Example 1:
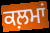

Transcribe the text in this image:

ਕਲ਼ਮਾਂ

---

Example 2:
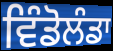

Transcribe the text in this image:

ਵਿੰਡੋਲੰਡਾ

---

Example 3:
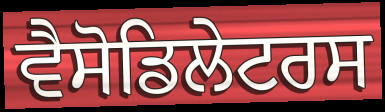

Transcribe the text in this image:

ਵੈਸੋਡਿਲੇਟਰਸ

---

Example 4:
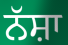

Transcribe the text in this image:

ਨੱਸ਼ਾ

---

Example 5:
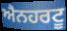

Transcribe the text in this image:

ਐਨਹਰਟੂ